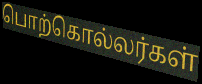
பொற்கொல்லர்கள்